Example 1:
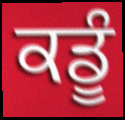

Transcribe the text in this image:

ਕਡੂੰ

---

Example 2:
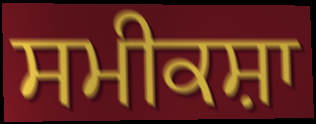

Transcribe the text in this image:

ਸਮੀਕਸ਼ਾ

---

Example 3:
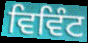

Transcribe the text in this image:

ਵਿਵਿੰਟ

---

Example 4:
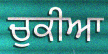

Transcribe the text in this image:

ਚੁਕੀਆ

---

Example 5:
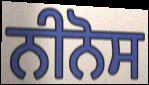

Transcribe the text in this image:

ਨੀਨੋਸ